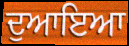
ਦੁਆਇਆ